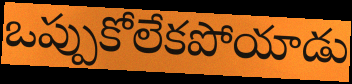
ఒప్పుకోలేకపోయాడు